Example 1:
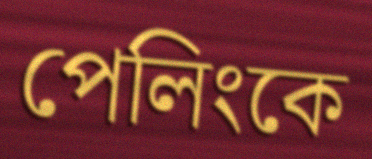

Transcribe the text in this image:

পেলিংকে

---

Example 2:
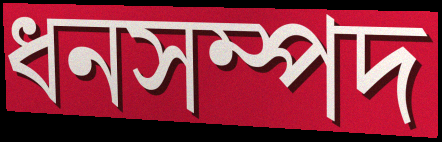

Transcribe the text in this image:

ধনসম্পদ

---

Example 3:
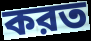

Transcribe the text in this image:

করত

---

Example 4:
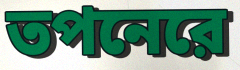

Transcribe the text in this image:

তপনেরে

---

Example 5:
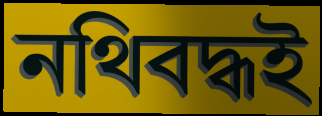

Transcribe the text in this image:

নথিবদ্ধই